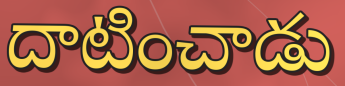
దాటించాడు